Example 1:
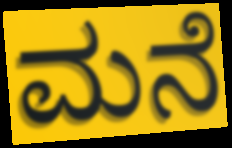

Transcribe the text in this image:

ಮನೆ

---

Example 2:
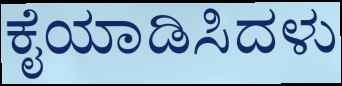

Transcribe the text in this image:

ಕೈಯಾಡಿಸಿದಳು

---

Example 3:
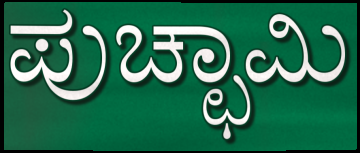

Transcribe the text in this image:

ಪುಚ್ಛಾಮಿ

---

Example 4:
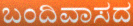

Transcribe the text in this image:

ಬಂದಿವಾಸದ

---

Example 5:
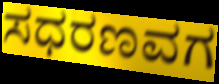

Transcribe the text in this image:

ಸಧರಣವಗ